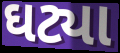
ઘટ્યા